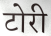
टोरी